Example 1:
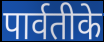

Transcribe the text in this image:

पार्वतीके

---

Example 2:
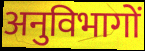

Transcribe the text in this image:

अनुविभागों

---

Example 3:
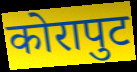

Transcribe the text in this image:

कोरापुट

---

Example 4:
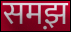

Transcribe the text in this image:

समझ़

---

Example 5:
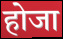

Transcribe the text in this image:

होजा